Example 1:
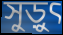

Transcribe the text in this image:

সুড়ুৎ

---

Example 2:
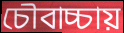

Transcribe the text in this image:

চৌবাচ্চায়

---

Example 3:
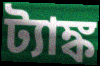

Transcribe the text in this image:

ট্যাঙ্ক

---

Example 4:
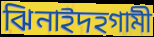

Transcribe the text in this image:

ঝিনাইদহগামী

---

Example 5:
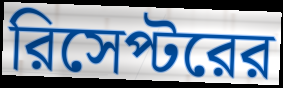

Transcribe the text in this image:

রিসেপ্টরের